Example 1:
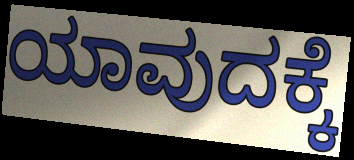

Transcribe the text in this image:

ಯಾವುದಕ್ಕೆ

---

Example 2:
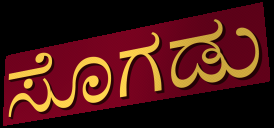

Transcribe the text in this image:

ಸೊಗಡು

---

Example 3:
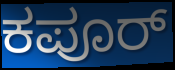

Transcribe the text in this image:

ಕಪೂರ್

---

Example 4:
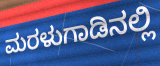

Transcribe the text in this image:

ಮರಳುಗಾಡಿನಲ್ಲಿ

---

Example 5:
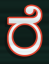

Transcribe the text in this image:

ರೆ